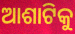
ଆଶାଟିକୁ